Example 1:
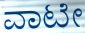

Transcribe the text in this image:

ವಾಟೇ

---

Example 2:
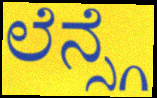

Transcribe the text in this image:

ಲೆನ್ಸ್ಗೆ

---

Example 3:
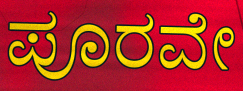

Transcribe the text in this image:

ಪೂರವೇ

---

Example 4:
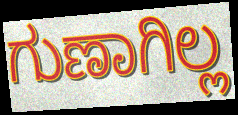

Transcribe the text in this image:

ಗುಣಾಗಿಲ್ಲ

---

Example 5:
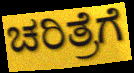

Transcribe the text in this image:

ಚರಿತ್ರೆಗೆ